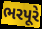
ભરપૂરે